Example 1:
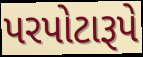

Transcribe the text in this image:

પરપોટારૂપે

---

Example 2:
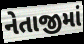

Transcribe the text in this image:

નેતાજીમાં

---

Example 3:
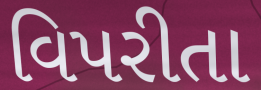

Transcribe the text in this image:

વિપરીતા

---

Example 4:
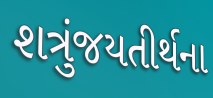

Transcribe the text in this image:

શત્રુંજયતીર્થના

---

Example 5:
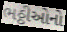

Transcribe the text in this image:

ભઠ્ઠીઓનો